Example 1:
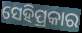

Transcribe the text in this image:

ସେହିପ୍ରକାର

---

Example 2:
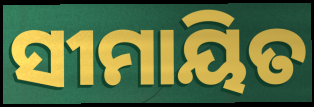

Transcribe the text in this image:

ସୀମାୟିତ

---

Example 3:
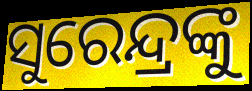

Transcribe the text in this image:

ସୁରେନ୍ଦ୍ରଙ୍କୁ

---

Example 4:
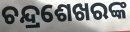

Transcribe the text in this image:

ଚନ୍ଦ୍ରଶେଖରଙ୍କ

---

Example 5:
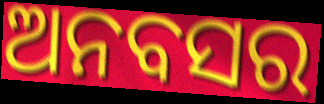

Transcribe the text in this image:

ଅନବସର